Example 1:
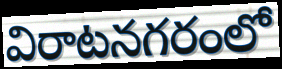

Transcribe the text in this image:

విరాటనగరంలో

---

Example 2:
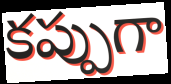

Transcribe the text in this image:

కప్పుగా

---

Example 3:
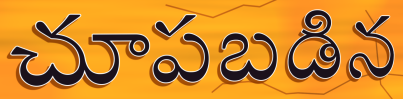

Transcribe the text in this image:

చూపబడిన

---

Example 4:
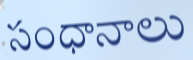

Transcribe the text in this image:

సంధానాలు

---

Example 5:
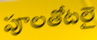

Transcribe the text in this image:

పూలతోటలై